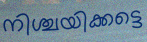
നിശ്ചയിക്കട്ടെ